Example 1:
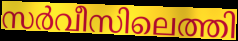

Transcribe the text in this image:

സർവീസിലെത്തി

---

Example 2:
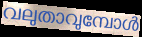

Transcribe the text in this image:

വലുതാവുമ്പോൾ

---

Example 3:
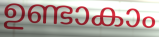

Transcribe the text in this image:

ഉണ്ടാകാം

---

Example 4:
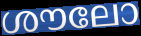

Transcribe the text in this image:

ശൗലോ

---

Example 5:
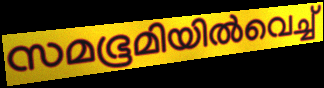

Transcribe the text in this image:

സമഭൂമിയിൽവെച്ച്